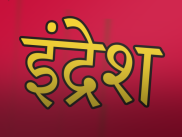
इंद्रेश